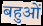
बहुओं